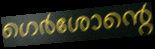
ഗെർശോന്റെ